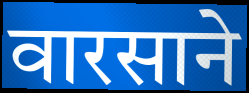
वारसाने